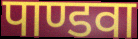
पाण्डवा